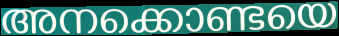
അനക്കൊണ്ടയെ